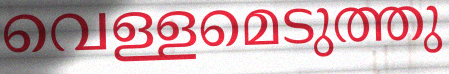
വെള്ളമെടുത്തു